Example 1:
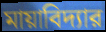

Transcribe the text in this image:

মায়াবিদ্যার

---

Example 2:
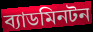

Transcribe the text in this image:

ব্যাডমিনটন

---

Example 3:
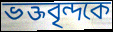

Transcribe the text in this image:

ভক্তবৃন্দকে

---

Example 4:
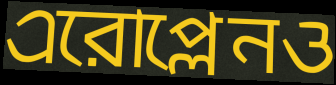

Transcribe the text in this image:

এরোপ্লেনও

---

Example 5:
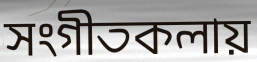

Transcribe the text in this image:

সংগীতকলায়